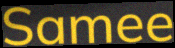
Samee